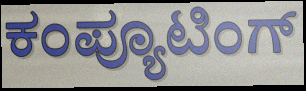
ಕಂಪ್ಯೂಟಿಂಗ್